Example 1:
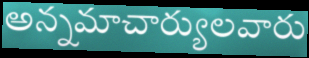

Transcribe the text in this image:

అన్నమాచార్యులవారు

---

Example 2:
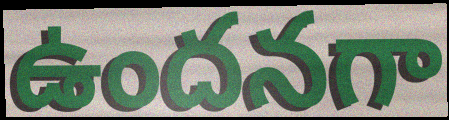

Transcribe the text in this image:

ఉందనగా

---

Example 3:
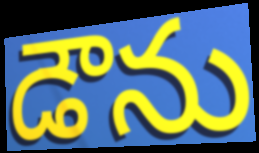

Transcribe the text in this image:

డౌను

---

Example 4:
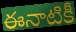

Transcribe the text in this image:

ఈనాటికీ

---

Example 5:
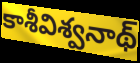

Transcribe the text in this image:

కాశీవిశ్వనాథ్